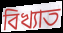
বিখ্যাত